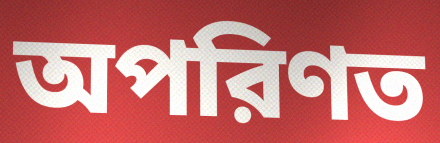
অপরিণত